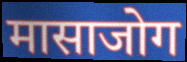
मासाजोग